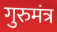
गुरुमंत्र